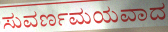
ಸುವರ್ಣಮಯವಾದ